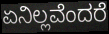
ಏನಿಲ್ಲವೆಂದರೆ